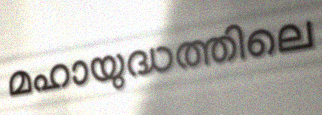
മഹായുദ്ധത്തിലെ